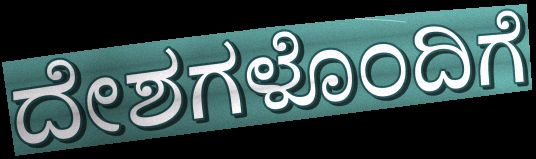
ದೇಶಗಳೊಂದಿಗೆ